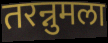
तरन्नुमला